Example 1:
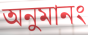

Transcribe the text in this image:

অনুমানং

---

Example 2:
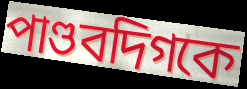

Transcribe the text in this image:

পাণ্ডবদিগকে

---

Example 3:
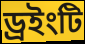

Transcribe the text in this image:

ড্রইংটি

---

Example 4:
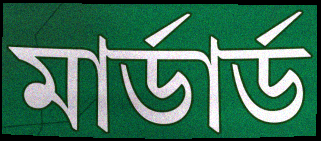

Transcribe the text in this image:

মার্ডার্ড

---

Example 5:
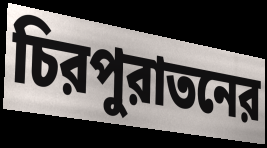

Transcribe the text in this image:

চিরপুরাতনের